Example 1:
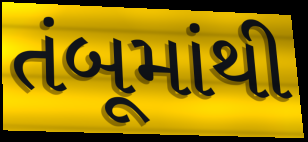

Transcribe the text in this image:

તંબૂમાંથી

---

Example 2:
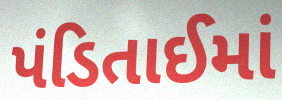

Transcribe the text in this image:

પંડિતાઈમાં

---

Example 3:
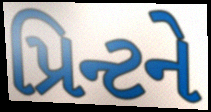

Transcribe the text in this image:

પ્રિન્ટને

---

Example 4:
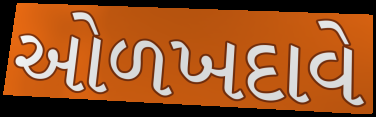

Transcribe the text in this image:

ઓળખદાવે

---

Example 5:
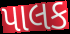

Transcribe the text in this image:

પાલક